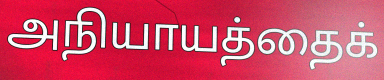
அநியாயத்தைக்